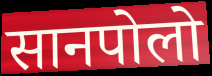
सानपोलो